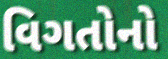
વિગતોનો